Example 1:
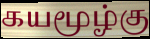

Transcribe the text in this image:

கயமூழ்கு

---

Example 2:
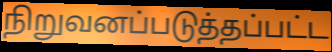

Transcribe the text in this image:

நிறுவனப்படுத்தப்பட்ட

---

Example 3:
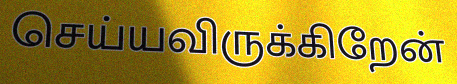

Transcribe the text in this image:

செய்யவிருக்கிறேன்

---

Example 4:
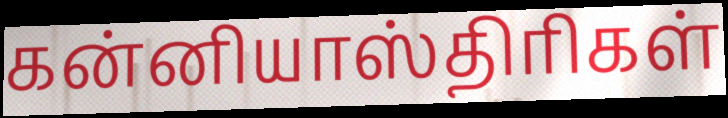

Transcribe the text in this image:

கன்னியாஸ்திரிகள்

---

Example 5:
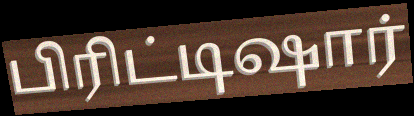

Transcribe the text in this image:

பிரிட்டிஷார்